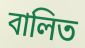
বালিত